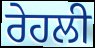
ਰੇਹਲੀ